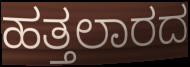
ಹತ್ತಲಾರದ